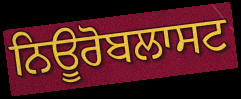
ਨਿਊਰੋਬਲਾਸਟ